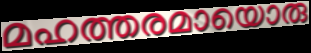
മഹത്തരമായൊരു